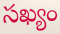
సఖ్యం